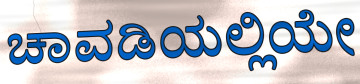
ಚಾವಡಿಯಲ್ಲಿಯೇ